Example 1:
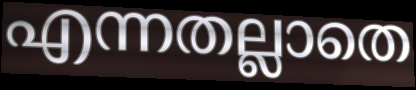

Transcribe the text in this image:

എന്നതല്ലാതെ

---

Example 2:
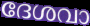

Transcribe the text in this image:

ദേശവാ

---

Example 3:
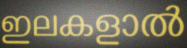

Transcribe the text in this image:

ഇലകളാൽ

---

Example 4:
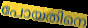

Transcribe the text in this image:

പോയതിനെ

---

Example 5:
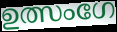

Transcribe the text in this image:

ഉത്സംഗേ